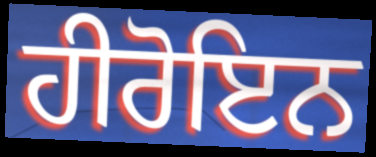
ਹੀਰੋਇਨ